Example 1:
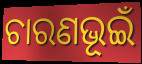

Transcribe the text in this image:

ଚାରଣଭୂଇଁ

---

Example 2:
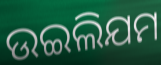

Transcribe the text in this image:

ଉଇଲିଯମ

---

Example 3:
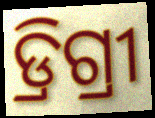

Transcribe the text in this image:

ଡ୍ରିଗ୍ରୀ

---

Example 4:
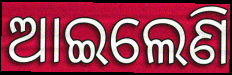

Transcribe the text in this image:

ଆଇଲେଣି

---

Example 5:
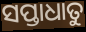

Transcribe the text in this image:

ସପ୍ତାଧାତୁ